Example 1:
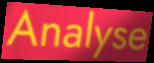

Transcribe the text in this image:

Analyse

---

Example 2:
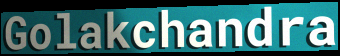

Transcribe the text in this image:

Golakchandra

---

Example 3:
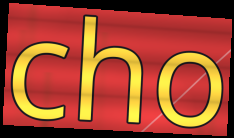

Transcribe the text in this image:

cho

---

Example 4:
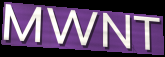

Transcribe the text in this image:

MWNT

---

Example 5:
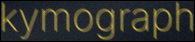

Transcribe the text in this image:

kymograph